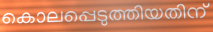
കൊലപ്പെടുത്തിയതിന്